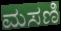
ಮಸಣಿ